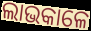
ଲାଭକାଳେ